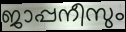
ജാപ്പനീസും